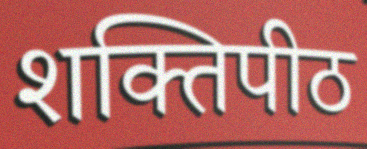
शक्तिपीठ